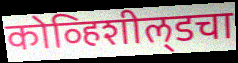
कोव्हिशील्डचा